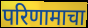
परिणामाचा